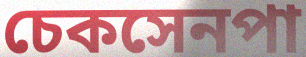
চেকসেনপা